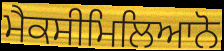
ਮੈਕਸੀਮਿਲਿਆਨੋ